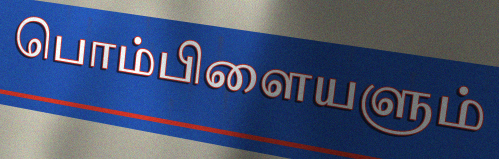
பொம்பிளையளும்